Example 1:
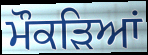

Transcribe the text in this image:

ਮੌਕੜਿਆਂ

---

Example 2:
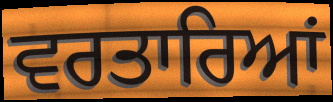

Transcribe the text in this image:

ਵਰਤਾਰਿਆਂ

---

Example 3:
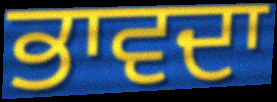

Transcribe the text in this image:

ਭਾਵਦਾ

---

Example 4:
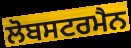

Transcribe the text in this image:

ਲੋਬਸਟਰਮੈਨ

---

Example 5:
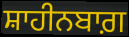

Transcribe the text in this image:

ਸ਼ਾਹੀਨਬਾਗ਼